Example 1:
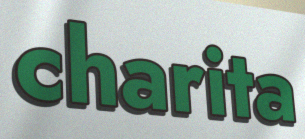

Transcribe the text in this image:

charita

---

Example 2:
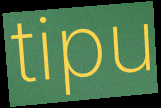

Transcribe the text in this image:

tipu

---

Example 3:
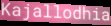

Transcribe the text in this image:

Kajallodhia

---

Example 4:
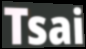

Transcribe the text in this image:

Tsai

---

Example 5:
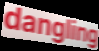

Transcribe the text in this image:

dangling